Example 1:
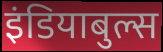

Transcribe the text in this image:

इंडियाबुल्‍स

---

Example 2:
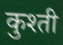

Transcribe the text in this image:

कुश्ती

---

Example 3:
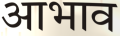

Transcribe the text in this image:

आभाव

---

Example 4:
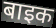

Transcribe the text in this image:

बाइक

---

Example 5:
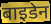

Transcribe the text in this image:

बाइडेन